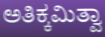
ಅತಿಕ್ಕಮಿತ್ವಾ